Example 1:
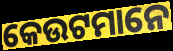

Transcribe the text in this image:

କେଉଟମାନେ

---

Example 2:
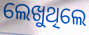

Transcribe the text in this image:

ଲେଖୁଥିଲେ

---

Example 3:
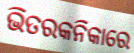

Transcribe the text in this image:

ଭିତରକନିକାରେ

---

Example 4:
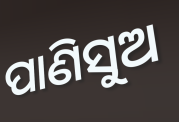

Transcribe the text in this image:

ପାଣିସୁଅ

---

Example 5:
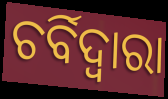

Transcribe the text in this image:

ଚର୍ବିଦ୍ଵାରା